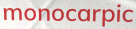
monocarpic